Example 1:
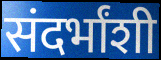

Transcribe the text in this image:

संदर्भांशी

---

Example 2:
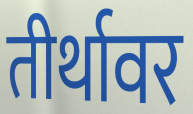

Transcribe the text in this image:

तीर्थावर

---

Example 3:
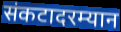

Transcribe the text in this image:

संकटादरम्यान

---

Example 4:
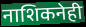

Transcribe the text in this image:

नाशिकनेही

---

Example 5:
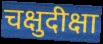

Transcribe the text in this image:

चक्षुदीक्षा